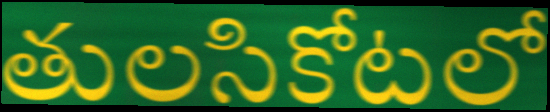
తులసికోటలో